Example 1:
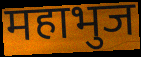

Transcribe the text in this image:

महाभुज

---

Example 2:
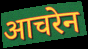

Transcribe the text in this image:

आचरेन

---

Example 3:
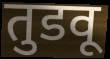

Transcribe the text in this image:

तुडवू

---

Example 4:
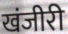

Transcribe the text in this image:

खंजीरी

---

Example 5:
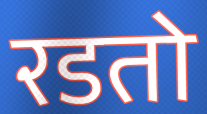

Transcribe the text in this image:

रडतो